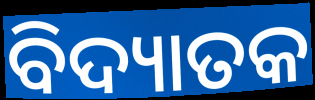
ବିଦ୍ୟାତକ